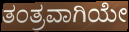
ತಂತ್ರವಾಗಿಯೇ